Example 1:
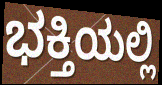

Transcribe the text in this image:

ಭಕ್ತಿಯಲ್ಲಿ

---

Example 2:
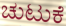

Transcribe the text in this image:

ಚುಟುಕೆ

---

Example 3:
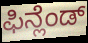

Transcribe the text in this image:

ಫಿನ್ಲೆಂಡ್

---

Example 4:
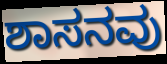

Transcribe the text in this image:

ಶಾಸನವು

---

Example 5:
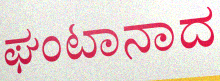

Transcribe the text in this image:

ಘಂಟಾನಾದ